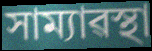
সাম্যাৱস্থা